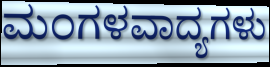
ಮಂಗಳವಾದ್ಯಗಳು